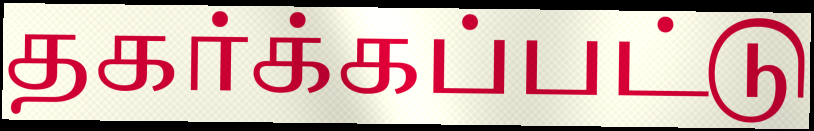
தகர்க்கப்பட்டு